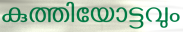
കുത്തിയോട്ടവും